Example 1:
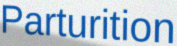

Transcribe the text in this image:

Parturition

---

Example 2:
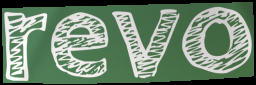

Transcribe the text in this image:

revo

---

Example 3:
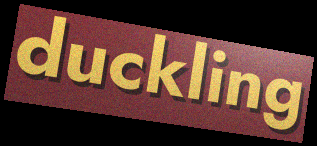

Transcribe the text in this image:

duckling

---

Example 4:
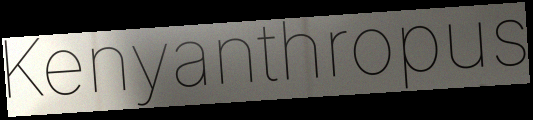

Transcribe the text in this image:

Kenyanthropus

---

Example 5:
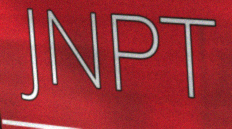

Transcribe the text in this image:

JNPT